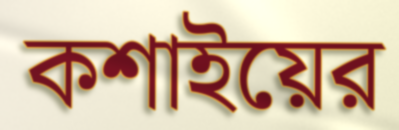
কশাইয়ের